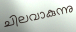
ചിലവാകുന്നു